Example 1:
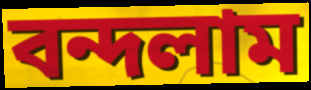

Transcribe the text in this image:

বন্দলাম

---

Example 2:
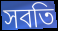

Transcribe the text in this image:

সবতি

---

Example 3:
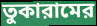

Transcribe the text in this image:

তুকারামের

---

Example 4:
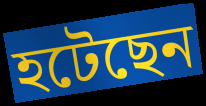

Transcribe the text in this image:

হটেছেন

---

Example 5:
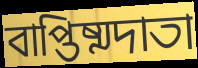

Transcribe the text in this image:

বাপ্তিষ্মদাতা